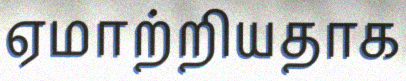
ஏமாற்றியதாக